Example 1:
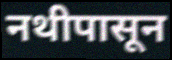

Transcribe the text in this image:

नथीपासून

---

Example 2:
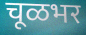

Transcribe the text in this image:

चूळभर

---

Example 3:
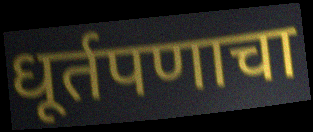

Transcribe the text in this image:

धूर्तपणाचा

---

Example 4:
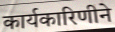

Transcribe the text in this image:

कार्यकारिणीने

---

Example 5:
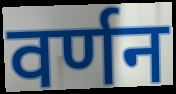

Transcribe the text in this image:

वर्णन